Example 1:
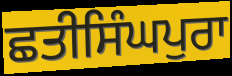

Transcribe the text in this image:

ਛਤੀਸਿੰਘਪੁਰਾ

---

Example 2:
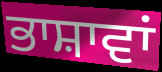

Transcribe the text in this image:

ਭਾਸ਼ਾਵਾਂ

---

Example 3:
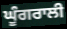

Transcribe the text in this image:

ਘੂੰਗਰਾਲੀ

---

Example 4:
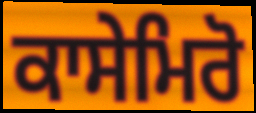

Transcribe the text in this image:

ਕਾਸੇਮਿਰੋ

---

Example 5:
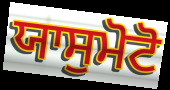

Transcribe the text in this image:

ਯਾਸੁਮੋਟੋ